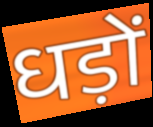
धड़ों